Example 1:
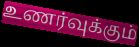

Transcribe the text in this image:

உணர்வுக்கும்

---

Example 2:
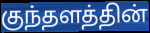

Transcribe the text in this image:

குந்தளத்தின்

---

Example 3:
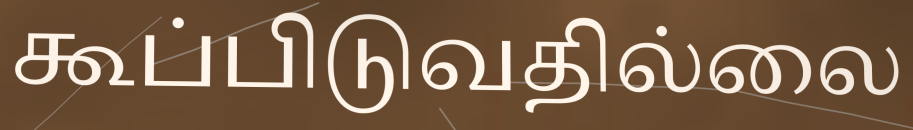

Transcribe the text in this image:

கூப்பிடுவதில்லை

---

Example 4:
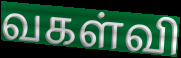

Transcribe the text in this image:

வகள்வி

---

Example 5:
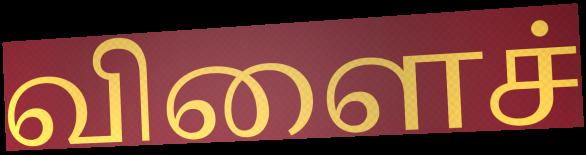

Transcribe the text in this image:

விளைச்